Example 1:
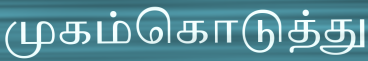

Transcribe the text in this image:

முகம்கொடுத்து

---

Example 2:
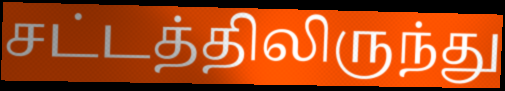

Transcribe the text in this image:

சட்டத்திலிருந்து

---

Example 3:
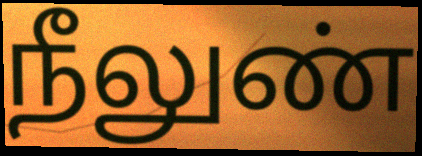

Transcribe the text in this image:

நீலுண்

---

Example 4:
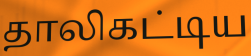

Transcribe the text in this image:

தாலிகட்டிய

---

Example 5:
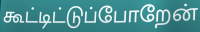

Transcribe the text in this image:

கூட்டிட்டுப்போறேன்